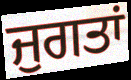
ਜੁਗਤਾਂ